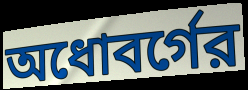
অধোবর্গের